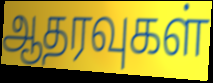
ஆதரவுகள்